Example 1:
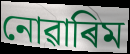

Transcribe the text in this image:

নোৱাৰিম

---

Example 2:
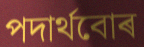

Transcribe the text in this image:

পদাৰ্থবোৰ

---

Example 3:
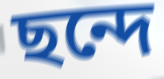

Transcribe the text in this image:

ছন্দে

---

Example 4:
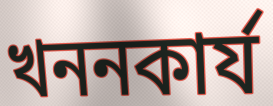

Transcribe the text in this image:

খননকাৰ্য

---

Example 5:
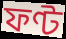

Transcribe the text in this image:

ফণ্ট